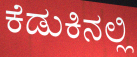
ಕೆಡುಕಿನಲ್ಲಿ